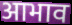
आभाव